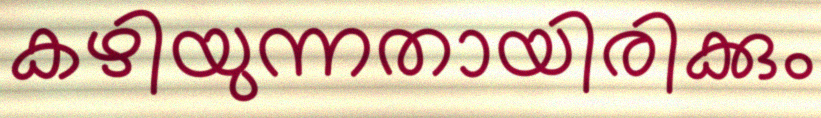
കഴിയുന്നതായിരിക്കും